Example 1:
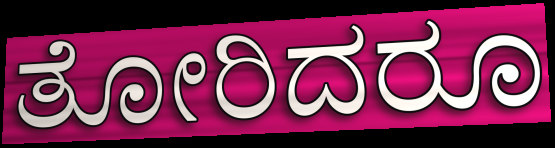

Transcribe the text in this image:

ತೋರಿದರೂ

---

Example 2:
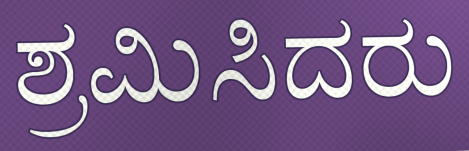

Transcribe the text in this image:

ಶ್ರಮಿಸಿದರು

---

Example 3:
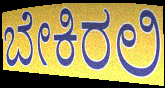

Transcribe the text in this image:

ಬೇಕಿರಲಿ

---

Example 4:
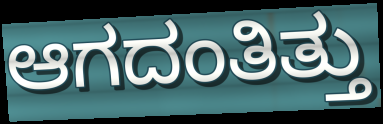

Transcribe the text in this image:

ಆಗದಂತಿತ್ತು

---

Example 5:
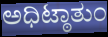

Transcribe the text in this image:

ಅಧಿಟ್ಠಾತುಂ